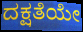
ದಕ್ಷತೆಯೇ